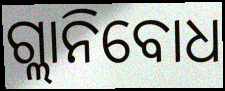
ଗ୍ଲାନିବୋଧ